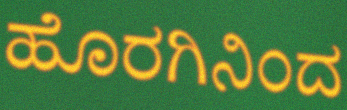
ಹೊರಗಿನಿಂದ